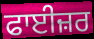
ਫਾਈਜ਼ਰ